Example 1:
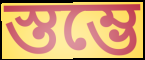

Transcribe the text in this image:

স্তম্ভে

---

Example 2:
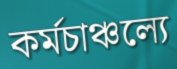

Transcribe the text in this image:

কর্মচাঞ্চল্যে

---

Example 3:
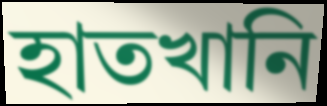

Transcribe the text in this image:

হাতখানি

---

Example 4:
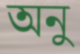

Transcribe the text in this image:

অনু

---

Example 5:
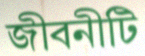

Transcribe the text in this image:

জীবনীটি